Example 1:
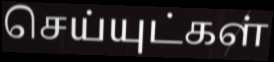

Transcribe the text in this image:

செய்யுட்கள்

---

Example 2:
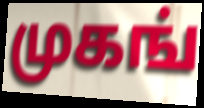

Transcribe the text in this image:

முகங்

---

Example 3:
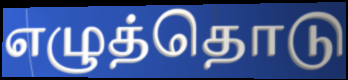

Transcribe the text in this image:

எழுத்தொடு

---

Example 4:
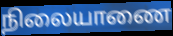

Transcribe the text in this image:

நிலையாணை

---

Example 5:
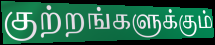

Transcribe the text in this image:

குற்றங்களுக்கும்